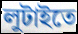
লুটাইতে